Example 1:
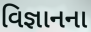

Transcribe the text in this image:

વિજ્ઞાનના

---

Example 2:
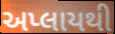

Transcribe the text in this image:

અપ્લાયથી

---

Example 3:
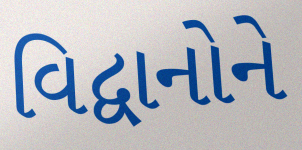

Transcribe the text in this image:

વિદ્વાનોને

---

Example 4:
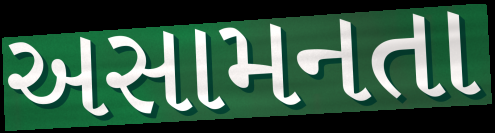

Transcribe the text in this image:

અસામનતા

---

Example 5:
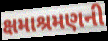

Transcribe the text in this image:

ક્ષમાશ્રમણની